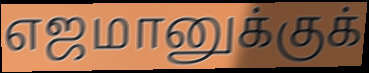
எஜமானுக்குக்